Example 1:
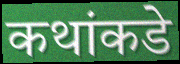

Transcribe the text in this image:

कथांकडे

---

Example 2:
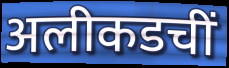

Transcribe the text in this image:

अलीकडचीं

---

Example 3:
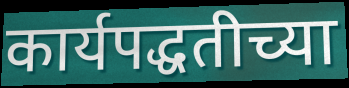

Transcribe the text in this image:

कार्यपद्धतीच्या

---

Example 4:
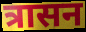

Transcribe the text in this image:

त्रासन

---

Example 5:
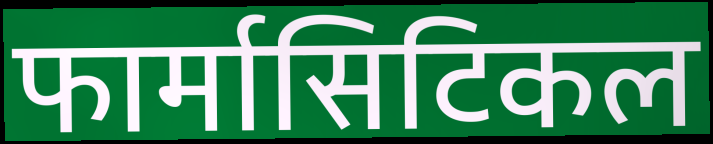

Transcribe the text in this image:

फार्मासिटिकल